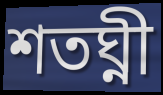
শতঘ্নী